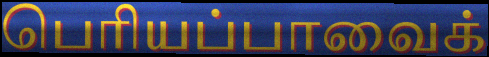
பெரியப்பாவைக்